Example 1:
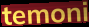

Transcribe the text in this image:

temoni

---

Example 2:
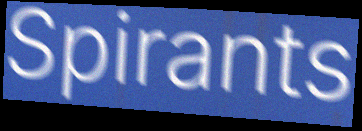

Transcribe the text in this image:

Spirants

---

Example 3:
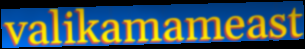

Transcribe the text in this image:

valikamameast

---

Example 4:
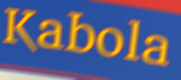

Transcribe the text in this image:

Kabola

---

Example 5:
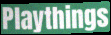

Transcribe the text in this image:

Playthings